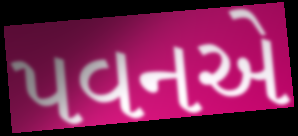
પવનએ